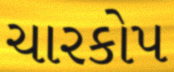
ચારકોપ